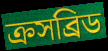
ক্রসব্রিড